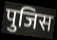
पुजिस